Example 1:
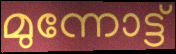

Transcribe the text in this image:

മുന്നോട്ട്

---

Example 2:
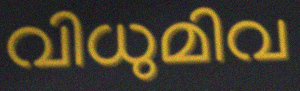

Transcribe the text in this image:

വിധുമിവ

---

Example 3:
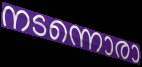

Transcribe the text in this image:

നടന്നൊരാ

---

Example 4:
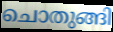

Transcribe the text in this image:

ചൊതുങ്ങി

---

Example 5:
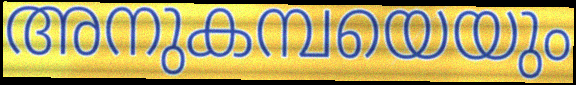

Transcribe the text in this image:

അനുകമ്പയെയും